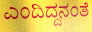
ಎಂದಿದ್ದನಂತೆ